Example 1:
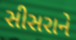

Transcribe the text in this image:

સીસરાને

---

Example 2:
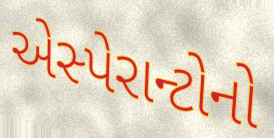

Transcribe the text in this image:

એસ્પેરાન્ટોનો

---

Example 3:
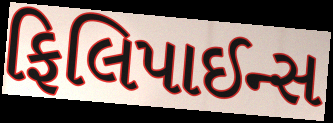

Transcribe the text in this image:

ફિલિપાઈન્સ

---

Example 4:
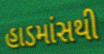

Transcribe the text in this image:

હાડમાંસથી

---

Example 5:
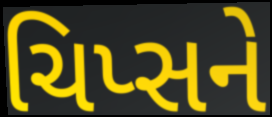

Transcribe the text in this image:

ચિપ્સને